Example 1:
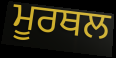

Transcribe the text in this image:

ਮੂਰਥਲ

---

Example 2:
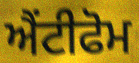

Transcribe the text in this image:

ਐਂਟੀਫੋਮ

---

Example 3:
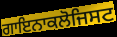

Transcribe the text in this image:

ਗਾਇਨਾਕਲੋਜਿਸਟ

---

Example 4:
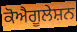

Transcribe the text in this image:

ਕੋਐਗੂਲੇਸ਼ਨ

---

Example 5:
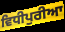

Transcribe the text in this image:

ਵਿਧੀਪੁਰੀਆ